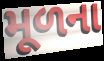
મૂળના